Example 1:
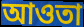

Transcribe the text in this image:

আওতা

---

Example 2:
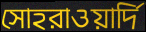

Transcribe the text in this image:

সোহরাওয়ার্দি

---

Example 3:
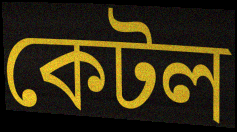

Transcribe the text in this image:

কেটল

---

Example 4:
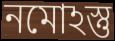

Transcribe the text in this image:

নমোঽস্তু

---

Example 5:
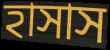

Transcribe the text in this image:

হাসাস